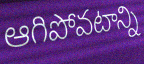
ఆగిపోవటాన్ని